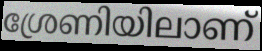
ശ്രേണിയിലാണ്